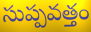
సుప్పవత్తం